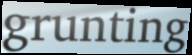
grunting